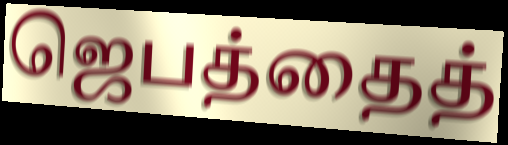
ஜெபத்தைத்